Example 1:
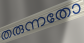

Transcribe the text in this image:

തരുന്നതോ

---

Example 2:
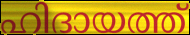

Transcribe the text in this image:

ഹിദായത്ത്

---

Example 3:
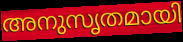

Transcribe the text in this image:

അനുസൃതമായി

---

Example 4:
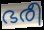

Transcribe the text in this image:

ഭരീ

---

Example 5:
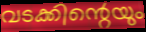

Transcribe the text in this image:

വടക്കിന്റെയും